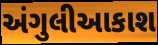
અંગુલીઆકાશ